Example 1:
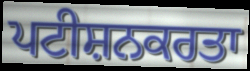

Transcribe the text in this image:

ਪਟੀਸ਼ਨਕਰਤਾ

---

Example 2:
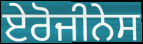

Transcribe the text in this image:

ਏਰੋਜੀਨੇਸ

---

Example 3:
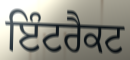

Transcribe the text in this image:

ਇੰਟਰੈਕਟ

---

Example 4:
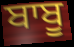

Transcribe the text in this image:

ਬਾਬੂ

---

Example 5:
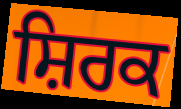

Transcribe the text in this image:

ਸ਼ਿਰਕ